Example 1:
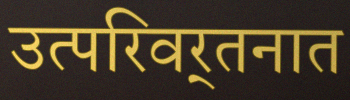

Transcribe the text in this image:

उत्परिवर्तनात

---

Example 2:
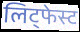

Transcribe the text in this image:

लिट्फेस्ट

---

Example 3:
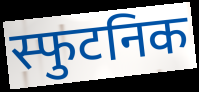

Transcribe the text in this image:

स्फुटनिक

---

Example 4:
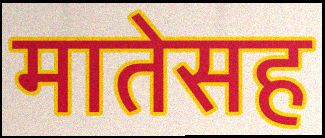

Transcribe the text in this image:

मातेसह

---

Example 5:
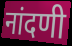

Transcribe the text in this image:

नांदणी